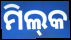
ମିଲ୍‌କ